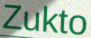
Zukto